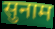
सुनाम